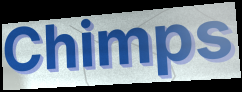
Chimps